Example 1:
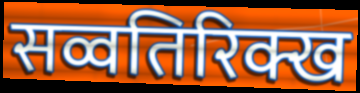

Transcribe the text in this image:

सव्वतिरिक्ख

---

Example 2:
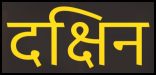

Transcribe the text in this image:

दक्षिन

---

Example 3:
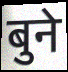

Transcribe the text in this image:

बुने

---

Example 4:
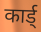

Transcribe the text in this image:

कार्ड्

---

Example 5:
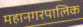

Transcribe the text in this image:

महानगरपालिक